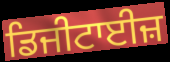
ਡਿਜੀਟਾਈਜ਼